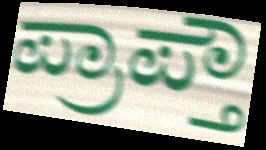
ಪ್ರಾಪ್ತೌ